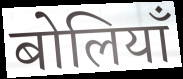
बोलियाँ